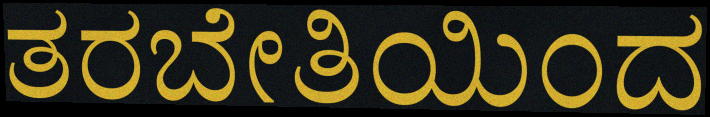
ತರಬೇತಿಯಿಂದ